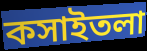
কসাইতলা